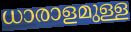
ധാരാളമുള്ള